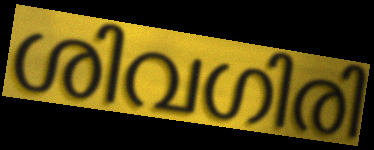
ശിവഗിരി